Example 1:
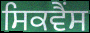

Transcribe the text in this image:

ਸਿਕਵੈਂਸ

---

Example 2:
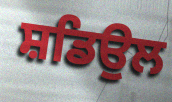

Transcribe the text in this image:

ਸ਼ਡਿਉਲ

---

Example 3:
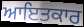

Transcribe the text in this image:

ਆਇਤਕਾਰ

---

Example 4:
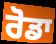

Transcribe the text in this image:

ਰੋਡਾ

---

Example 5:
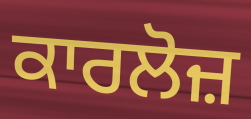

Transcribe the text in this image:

ਕਾਰਲੋਜ਼